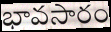
భావసారం